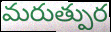
మరుత్పుర